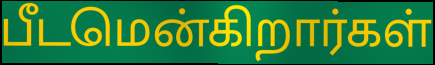
பீடமென்கிறார்கள்